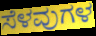
ಸೆಳವುಗಳ